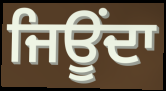
ਜਿਊਂਦਾ